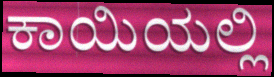
ಕಾಯಿಯಲ್ಲಿ